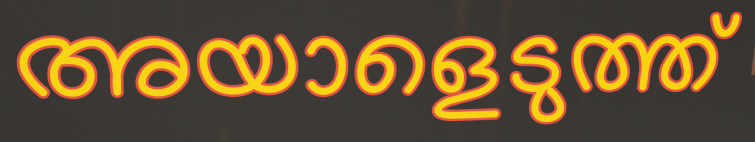
അയാളെടുത്ത്